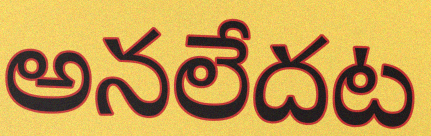
అనలేదట